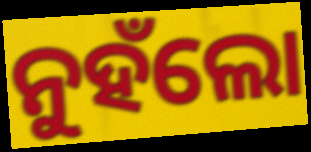
ନୁହଁଲୋ